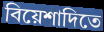
বিয়েশাদিতে